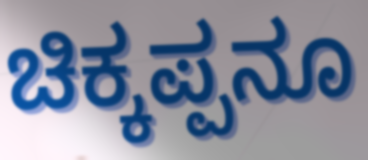
ಚಿಕ್ಕಪ್ಪನೂ